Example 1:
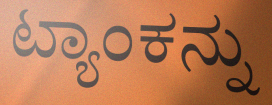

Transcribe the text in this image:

ಟ್ಯಾಂಕನ್ನು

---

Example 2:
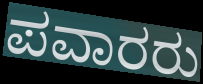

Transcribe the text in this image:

ಪವಾರರು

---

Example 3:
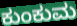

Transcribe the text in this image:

ಕುಂಕುಮ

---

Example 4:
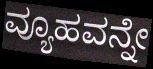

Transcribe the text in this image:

ವ್ಯೂಹವನ್ನೇ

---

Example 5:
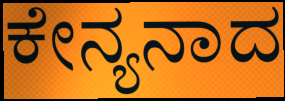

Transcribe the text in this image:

ಕೇನ್ಯನಾದ